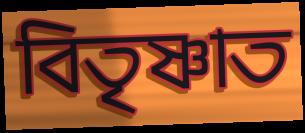
বিতৃষ্ণাত